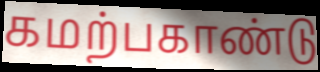
கமற்பகாண்டு